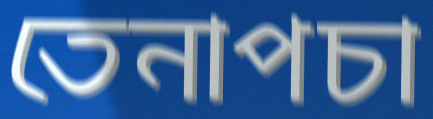
তেনাপচা